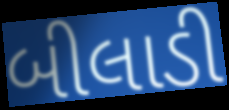
બીલાડી